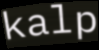
kalp